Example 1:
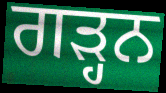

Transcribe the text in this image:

ਗੜ੍ਹਨ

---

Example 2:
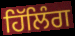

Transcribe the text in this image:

ਹਿੱਲਿੰਗ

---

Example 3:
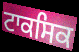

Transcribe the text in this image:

ਟਾਕਸਿਕ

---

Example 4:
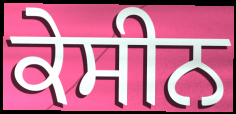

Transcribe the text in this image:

ਕੇਸੀਨ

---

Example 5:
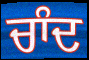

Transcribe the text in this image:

ਚਾੰਦ